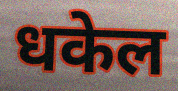
धकेल